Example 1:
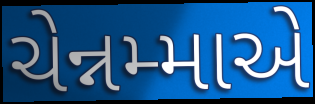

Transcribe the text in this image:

ચેન્નમ્માએ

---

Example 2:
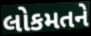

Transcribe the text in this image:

લોકમતને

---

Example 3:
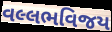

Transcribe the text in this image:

વલ્લભવિજય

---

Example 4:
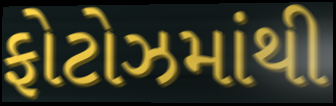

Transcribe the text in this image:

ફોટોઝમાંથી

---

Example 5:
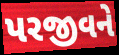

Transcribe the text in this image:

પરજીવને